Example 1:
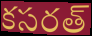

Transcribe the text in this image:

కసరత్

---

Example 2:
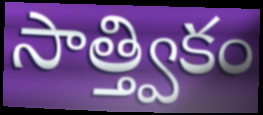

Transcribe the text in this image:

సాత్త్వికం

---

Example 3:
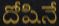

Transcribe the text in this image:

దోషినే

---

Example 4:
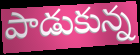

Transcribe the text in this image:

పాడుకున్న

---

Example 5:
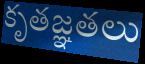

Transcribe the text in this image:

కృతజ్ఞతలు